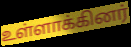
உள்ளாக்கினர்